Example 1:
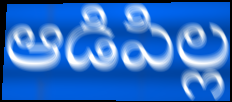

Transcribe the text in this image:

ఆడిపిల్ల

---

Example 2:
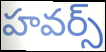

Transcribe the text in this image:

హవర్స్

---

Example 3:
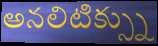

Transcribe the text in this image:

అనలిటిక్స్ను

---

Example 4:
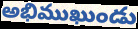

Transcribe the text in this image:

అభిముఖుండు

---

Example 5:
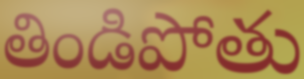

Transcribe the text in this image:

తిండిపోతు